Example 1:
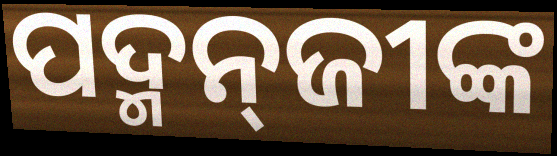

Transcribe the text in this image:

ପଦ୍ମନ୍‌ଜୀଙ୍କ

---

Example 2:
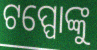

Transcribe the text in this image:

ଟପ୍ପୋଙ୍କୁ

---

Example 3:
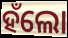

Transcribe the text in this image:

ହଁଲୋ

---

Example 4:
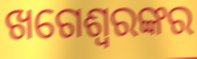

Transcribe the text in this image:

ଖଗେଶ୍ୱରଙ୍କର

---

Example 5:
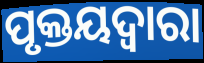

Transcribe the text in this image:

ପୃକ୍ତୟଦ୍ଵାରା